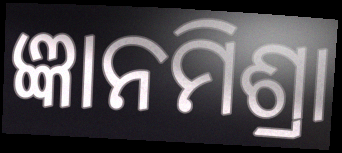
ଜ୍ଞାନମିଶ୍ରା